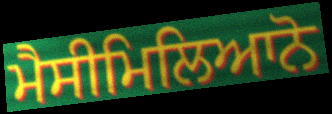
ਮੈਸੀਮਿਲਿਆਨੋ